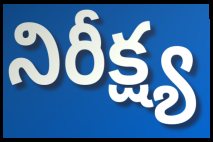
నిరీక్ష్య